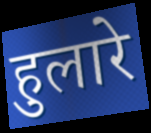
हुलारे